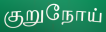
குறுநோய்